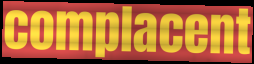
complacent